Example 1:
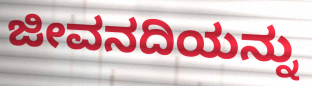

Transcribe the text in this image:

ಜೀವನದಿಯನ್ನು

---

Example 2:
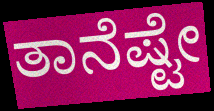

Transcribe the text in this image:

ತಾನೆಷ್ಟೇ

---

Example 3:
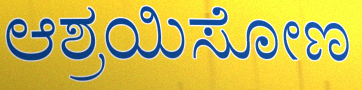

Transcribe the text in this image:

ಆಶ್ರಯಿಸೋಣ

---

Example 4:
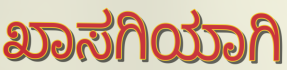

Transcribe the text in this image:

ಖಾಸಗಿಯಾಗಿ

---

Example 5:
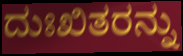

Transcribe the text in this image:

ದುಃಖಿತರನ್ನು